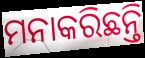
ମନାକରିଛନ୍ତି